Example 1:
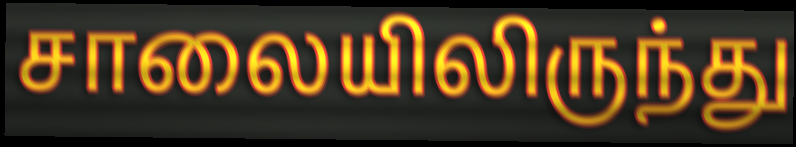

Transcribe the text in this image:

சாலையிலிருந்து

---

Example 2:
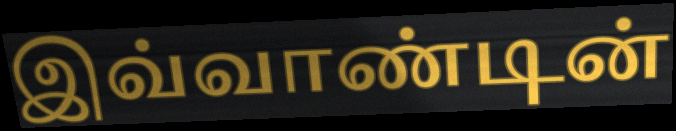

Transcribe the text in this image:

இவ்வாண்டின்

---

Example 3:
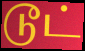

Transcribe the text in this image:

டூட்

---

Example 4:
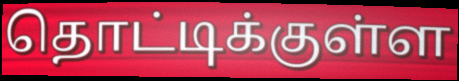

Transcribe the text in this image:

தொட்டிக்குள்ள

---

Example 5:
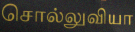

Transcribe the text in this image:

சொல்லுவியா